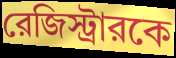
রেজিস্ট্রারকে